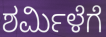
ಶರ್ಮಿಳೆಗೆ